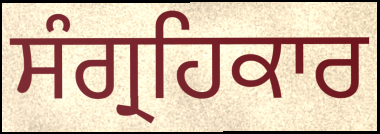
ਸੰਗ੍ਰਹਿਕਾਰ